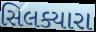
સિલક્યારા